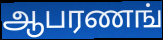
ஆபரணங்